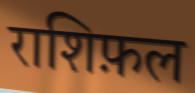
राशिफ़ल